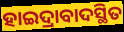
ହାଇଦ୍ରାବାଦସ୍ଥିତ